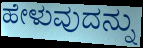
ಹೇಳುವುದನ್ನು